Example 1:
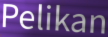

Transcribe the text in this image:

Pelikan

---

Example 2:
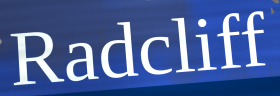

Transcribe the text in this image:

Radcliff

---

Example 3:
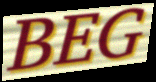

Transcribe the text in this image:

BEG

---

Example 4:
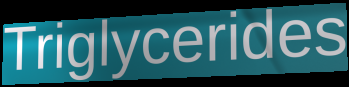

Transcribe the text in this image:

Triglycerides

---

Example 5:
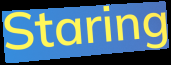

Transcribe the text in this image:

Staring